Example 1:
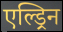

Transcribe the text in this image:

एल्ड्रिन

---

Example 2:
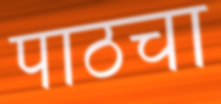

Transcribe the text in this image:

पाठचा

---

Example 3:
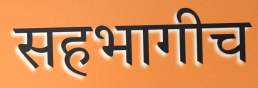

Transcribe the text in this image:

सहभागीच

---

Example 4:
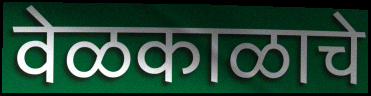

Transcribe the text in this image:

वेळकाळाचे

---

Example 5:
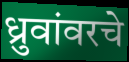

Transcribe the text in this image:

ध्रुवांवरचे